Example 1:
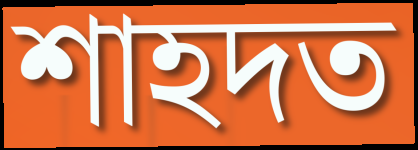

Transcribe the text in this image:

শাহদত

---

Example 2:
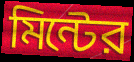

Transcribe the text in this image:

মিন্টের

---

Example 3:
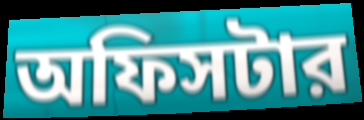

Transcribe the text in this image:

অফিসটার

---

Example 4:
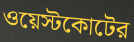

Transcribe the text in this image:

ওয়েস্টকোটের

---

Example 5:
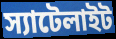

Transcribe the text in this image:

স্যাটেলাইট